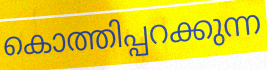
കൊത്തിപ്പറക്കുന്ന